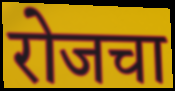
रोजचा